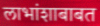
लाभांशाबाबत